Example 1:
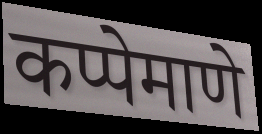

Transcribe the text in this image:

कप्पेमाणे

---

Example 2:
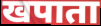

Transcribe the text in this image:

खपाता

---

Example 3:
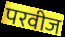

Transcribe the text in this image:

परवीज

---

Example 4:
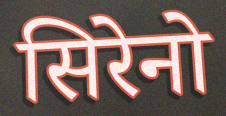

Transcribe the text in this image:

सिरेनो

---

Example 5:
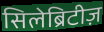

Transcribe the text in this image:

सिलेब्रिटीज़